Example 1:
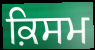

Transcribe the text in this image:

ਕ਼ਿਸਮ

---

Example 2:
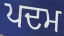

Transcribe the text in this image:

ਪਦਮ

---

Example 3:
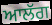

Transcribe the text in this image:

ਆਲੱਗ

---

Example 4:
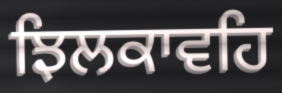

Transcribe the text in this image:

ਝਿਲਕਾਵਹਿ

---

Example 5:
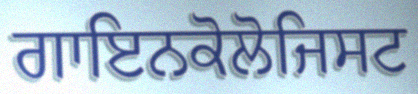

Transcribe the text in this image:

ਗਾਇਨਕੋਲੋਜਿਸਟ